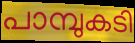
പാമ്പുകടി